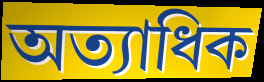
অত্যাধিক